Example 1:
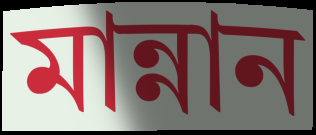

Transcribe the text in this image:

মান্নান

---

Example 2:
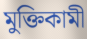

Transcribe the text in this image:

মুক্তিকামী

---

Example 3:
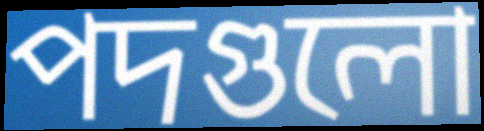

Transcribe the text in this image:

পদগুলো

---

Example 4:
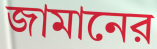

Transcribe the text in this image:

জামানের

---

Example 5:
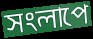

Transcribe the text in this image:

সংলাপে